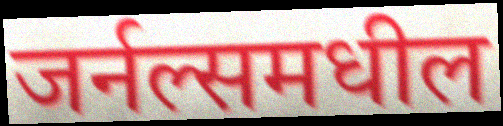
जर्नल्समधील